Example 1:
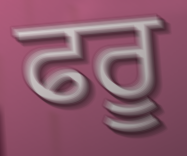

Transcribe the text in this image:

ਫਰੂ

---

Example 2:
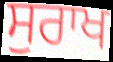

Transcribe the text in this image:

ਸੁਰਾਖ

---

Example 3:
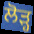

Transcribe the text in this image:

ਲੋੜ੍ਹ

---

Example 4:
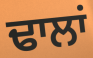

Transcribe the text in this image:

ਢਾਲਾਂ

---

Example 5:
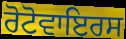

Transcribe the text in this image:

ਰੋਟੋਵਾਇਰਸ